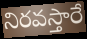
నిరవస్తారే